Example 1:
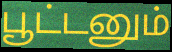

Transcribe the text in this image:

பூட்டனும்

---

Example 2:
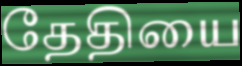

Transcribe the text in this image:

தேதியை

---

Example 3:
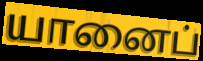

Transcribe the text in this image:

யானைப்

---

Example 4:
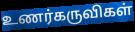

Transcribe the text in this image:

உணர்கருவிகள்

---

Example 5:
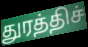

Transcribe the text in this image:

துரத்திச்